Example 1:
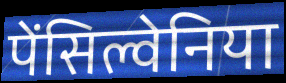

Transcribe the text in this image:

पेंसिल्वेनिया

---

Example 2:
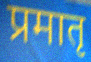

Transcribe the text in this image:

प्रमातृ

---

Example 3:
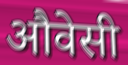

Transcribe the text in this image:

औवेसी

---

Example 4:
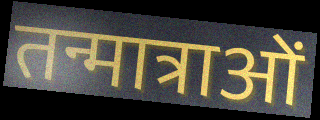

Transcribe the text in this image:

तन्मात्राओं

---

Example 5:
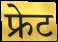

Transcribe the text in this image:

फ्रेट